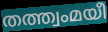
തത്ത്വംമയീ